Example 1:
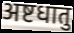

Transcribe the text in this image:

अष्टधातु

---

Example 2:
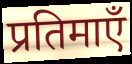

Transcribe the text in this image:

प्रतिमाएँ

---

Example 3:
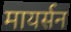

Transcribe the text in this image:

मायर्सन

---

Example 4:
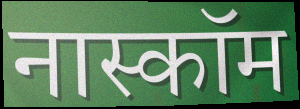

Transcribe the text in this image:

नास्कॉम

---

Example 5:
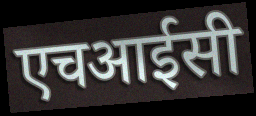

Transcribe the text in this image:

एचआईसी